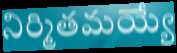
నిర్మితమయ్యే